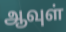
ஆவுள்